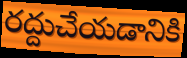
రద్దుచేయడానికి